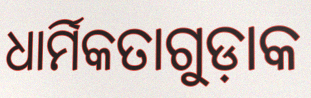
ଧାର୍ମିକତାଗୁଡ଼ାକ